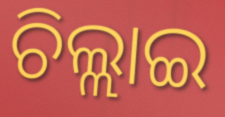
ଚିଲ୍ଲାଇ